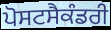
ਪੋਸਟਸੈਕੰਡਰੀ